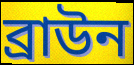
ব্ৰাউন